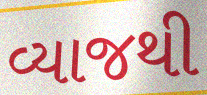
વ્યાજથી